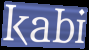
kabi